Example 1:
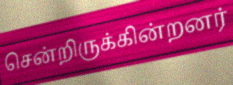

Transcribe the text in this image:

சென்றிருக்கின்றனர்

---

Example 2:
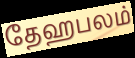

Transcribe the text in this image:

தேஹபலம்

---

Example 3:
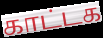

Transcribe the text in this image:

காட்டக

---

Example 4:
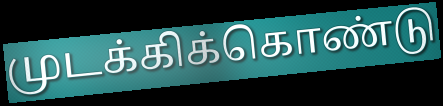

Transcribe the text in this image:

முடக்கிக்கொண்டு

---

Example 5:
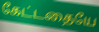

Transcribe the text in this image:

கேட்டதையே